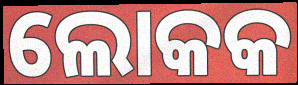
ଲୋକକ